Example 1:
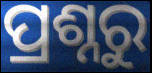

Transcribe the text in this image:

ପ୍ରଶ୍ନରୁ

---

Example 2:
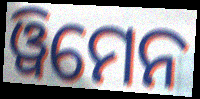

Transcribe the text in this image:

ୱିମେନ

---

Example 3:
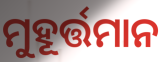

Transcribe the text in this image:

ମୁହୂର୍ତ୍ତମାନ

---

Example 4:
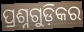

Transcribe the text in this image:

ପ୍ରଶ୍ନଗୁଡ଼ିକର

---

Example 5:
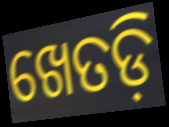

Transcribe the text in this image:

ଖେତଡ଼ି